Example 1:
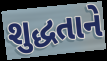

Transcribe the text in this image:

શુદ્ધતાને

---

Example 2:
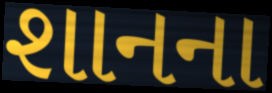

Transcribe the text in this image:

શાનના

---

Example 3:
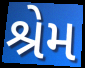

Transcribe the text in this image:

શ્રેમ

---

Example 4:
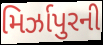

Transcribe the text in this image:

મિર્ઝાપુરની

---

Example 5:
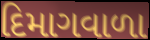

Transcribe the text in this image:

દિમાગવાળા